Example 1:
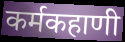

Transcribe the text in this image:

कर्मकहाणी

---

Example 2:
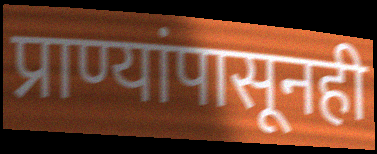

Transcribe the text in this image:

प्राण्यांपासूनही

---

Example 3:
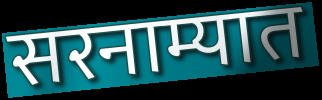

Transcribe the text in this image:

सरनाम्यात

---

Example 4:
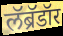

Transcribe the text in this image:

लॅब्रॅडॉर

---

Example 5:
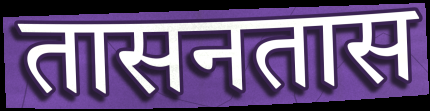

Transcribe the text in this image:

तासनतास